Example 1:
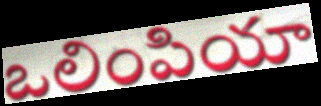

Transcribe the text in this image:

ఒలింపియా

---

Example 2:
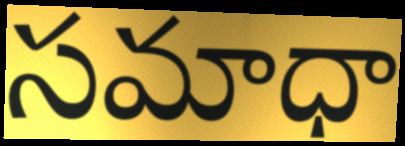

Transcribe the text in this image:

సమాధా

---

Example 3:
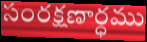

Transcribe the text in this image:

సంరక్షణార్ధము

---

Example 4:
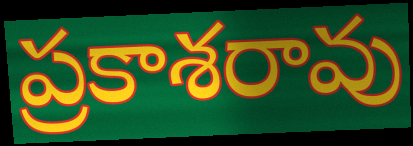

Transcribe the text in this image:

ప్రకాశరావు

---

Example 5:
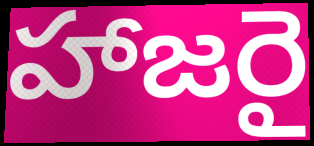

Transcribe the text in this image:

హాజరై